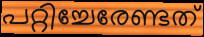
പറ്റിച്ചേരേണ്ടത്